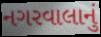
નગરવાલાનું